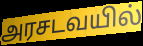
அரசடவயில்